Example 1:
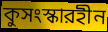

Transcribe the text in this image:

কুসংস্কারহীন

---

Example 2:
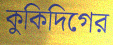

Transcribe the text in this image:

কুকিদিগের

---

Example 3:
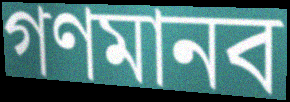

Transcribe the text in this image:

গণমানব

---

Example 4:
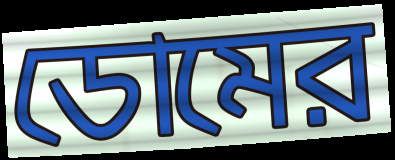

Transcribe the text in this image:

ডোমের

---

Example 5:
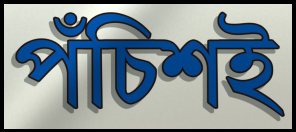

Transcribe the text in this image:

পঁচিশই